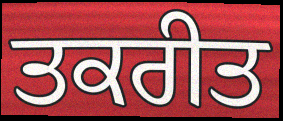
ਤਕਰੀਤ